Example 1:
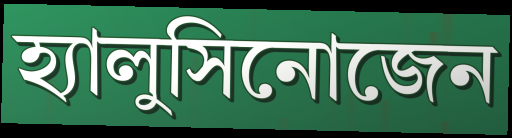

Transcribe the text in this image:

হ্যালুসিনোজেন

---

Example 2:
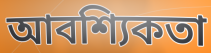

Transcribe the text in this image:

আবশ্যিকতা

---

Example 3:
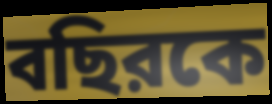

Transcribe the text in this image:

বছিরকে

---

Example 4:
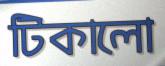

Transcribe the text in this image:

টিকালো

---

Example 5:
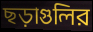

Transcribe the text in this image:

ছড়াগুলির